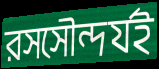
রসসৌন্দর্যই